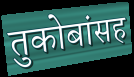
तुकोबांसह